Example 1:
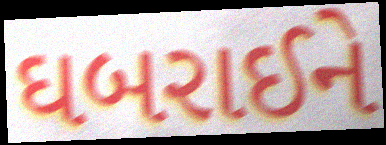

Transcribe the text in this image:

ઘબરાઈને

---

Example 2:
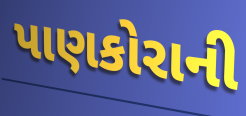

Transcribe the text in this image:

પાણકોરાની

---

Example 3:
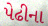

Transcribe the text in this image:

પેઢીના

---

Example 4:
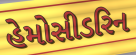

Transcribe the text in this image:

હેમોસીડરિન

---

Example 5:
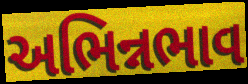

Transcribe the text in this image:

અભિન્નભાવ